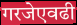
गरजेएवढी